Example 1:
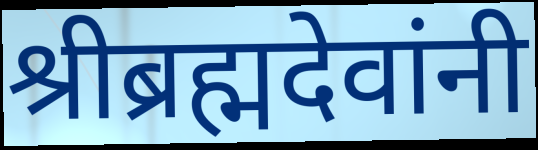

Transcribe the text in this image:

श्रीब्रह्मदेवांनी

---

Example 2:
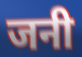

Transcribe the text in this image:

जनी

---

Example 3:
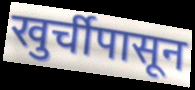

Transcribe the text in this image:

खुर्चीपासून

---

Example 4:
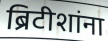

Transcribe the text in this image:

ब्रिटीशांना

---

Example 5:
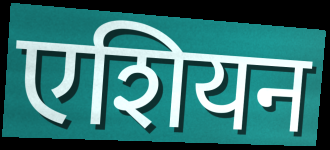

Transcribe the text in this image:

एशियन